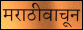
मराठीवाचून